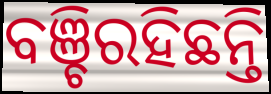
ବଞ୍ଚିରହିଛନ୍ତି